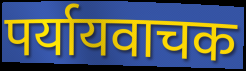
पर्यायवाचक